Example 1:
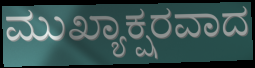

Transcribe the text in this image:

ಮುಖ್ಯಾಕ್ಷರವಾದ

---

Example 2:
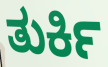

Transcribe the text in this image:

ತುರ್ಕಿ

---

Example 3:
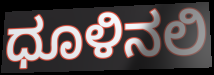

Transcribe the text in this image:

ಧೂಳಿನಲಿ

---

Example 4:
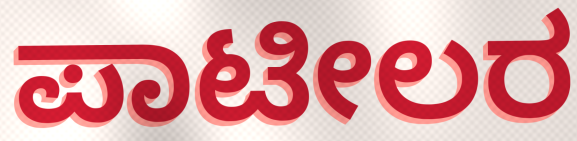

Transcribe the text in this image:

ಪಾಟೀಲರ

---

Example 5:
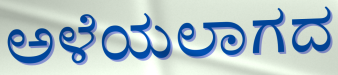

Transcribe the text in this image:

ಅಳೆಯಲಾಗದ